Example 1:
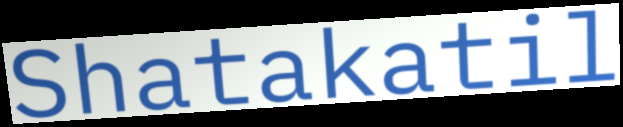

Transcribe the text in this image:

Shatakatil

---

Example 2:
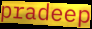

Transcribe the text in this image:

pradeep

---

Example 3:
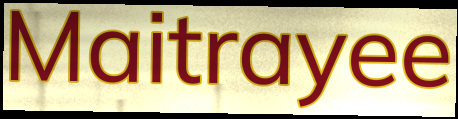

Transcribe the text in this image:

Maitrayee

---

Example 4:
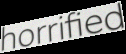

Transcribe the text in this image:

horrified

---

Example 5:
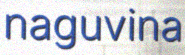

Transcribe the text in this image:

naguvina